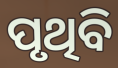
ପୃଥିବି